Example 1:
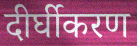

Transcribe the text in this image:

दीर्घीकरण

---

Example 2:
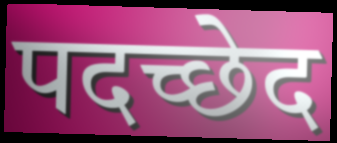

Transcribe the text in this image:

पदच्छेद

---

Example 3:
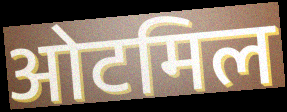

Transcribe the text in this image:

ओटमिल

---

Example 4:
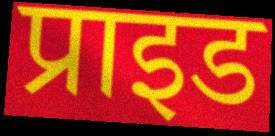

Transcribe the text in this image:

प्राइड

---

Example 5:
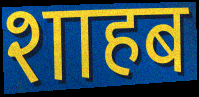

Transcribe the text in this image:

शाहब